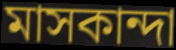
মাসকান্দা